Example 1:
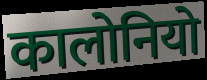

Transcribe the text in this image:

कालोनियो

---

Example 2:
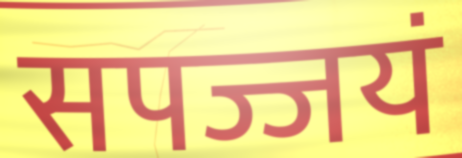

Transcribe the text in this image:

सपज्जयं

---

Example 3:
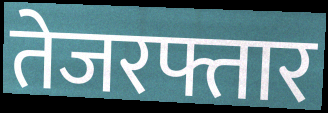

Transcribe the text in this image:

तेजरफ्तार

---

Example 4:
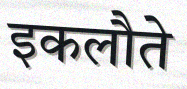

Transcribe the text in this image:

इकलौते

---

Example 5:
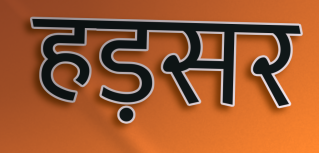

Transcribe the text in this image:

हड़सर